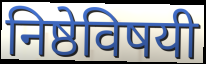
निष्ठेविषयी